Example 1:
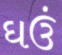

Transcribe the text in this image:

ઘઉં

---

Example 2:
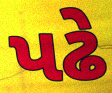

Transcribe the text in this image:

પઢે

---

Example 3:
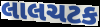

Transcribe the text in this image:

લાલચટક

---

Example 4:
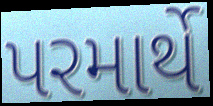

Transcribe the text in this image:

પરમાર્થે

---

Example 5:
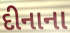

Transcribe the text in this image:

દીનાના